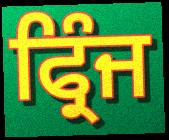
ਫ੍ਰਿੰਜ